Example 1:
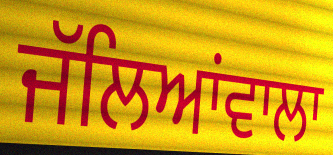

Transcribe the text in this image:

ਜੱਲਿਆਂਵਾਲਾ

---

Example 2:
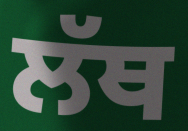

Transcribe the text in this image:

ਲੱਥ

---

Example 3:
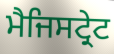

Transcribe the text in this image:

ਮੈਜਿਸਟ੍ਰੇਟ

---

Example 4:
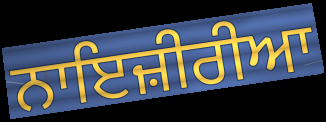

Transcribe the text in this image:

ਨਾਇਜ਼ੀਰੀਆ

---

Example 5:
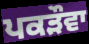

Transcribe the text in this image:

ਪਕੜੌਵਾ